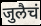
जुलैचं